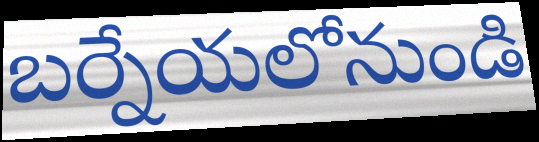
బర్నేయలోనుండి